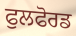
ਫੁਲਫੋਰਡ